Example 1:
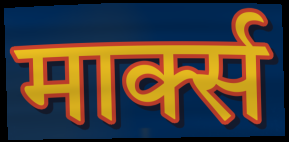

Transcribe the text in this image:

मार्क्‍स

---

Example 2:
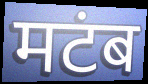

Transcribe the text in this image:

मटंब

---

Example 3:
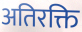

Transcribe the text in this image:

अतिरक्ति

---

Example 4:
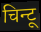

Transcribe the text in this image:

चिन्टू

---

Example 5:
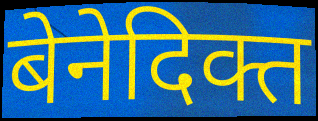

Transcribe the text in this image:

बेनेदिक्त